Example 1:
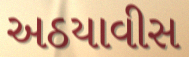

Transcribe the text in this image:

અઠયાવીસ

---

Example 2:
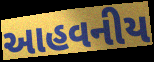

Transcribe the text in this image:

આહવનીય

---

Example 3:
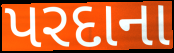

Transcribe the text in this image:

પરદાના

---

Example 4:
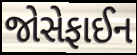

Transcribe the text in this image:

જોસેફાઈન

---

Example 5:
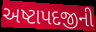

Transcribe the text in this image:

અષ્ટાપદજીની